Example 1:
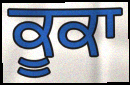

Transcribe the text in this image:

ਕੂਕਾ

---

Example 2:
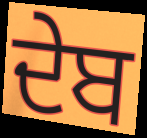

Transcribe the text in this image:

ਦੇਬ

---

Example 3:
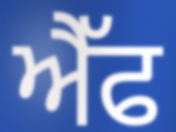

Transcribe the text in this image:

ਐੈੱਫ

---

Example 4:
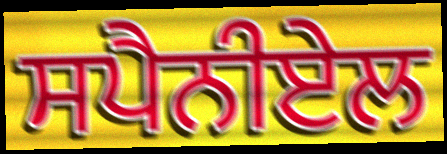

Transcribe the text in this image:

ਸਪੈਨੀਏਲ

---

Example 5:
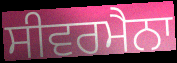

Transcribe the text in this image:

ਸੀਵਰਮੈਨਾ